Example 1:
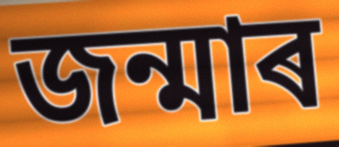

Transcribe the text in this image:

জন্মাৰ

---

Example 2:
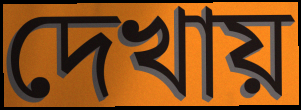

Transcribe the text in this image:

দেখায়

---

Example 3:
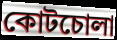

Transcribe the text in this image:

কোটচোলা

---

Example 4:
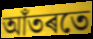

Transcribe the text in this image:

আঁতৰতে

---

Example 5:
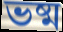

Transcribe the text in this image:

ভষ্ম